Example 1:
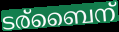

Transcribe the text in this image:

ടര്ബൈന്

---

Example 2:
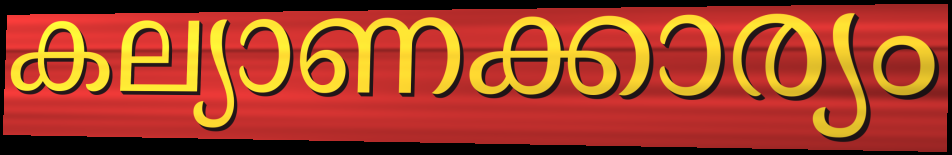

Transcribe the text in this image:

കല്യാണക്കാര്യം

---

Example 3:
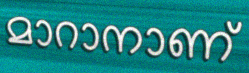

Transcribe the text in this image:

മാറാനാണ്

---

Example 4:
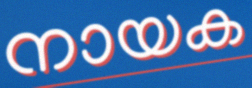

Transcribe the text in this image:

നായക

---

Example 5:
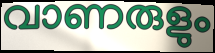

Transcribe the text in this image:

വാണരുളും